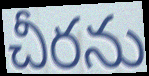
చీరను